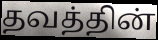
தவத்தின்